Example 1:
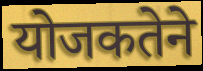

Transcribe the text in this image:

योजकतेने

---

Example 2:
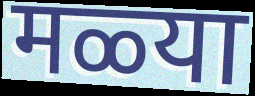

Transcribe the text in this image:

मळ्या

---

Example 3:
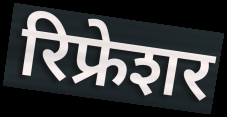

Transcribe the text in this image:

रिफ्रेशर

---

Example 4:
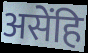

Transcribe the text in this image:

असेंहि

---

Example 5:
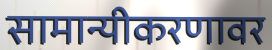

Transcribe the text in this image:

सामान्यीकरणावर